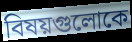
বিষয়গুলোকে